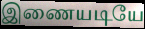
இணையடியே